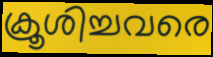
ക്രൂശിച്ചവരെ